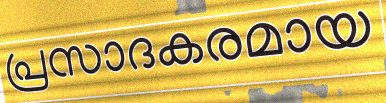
പ്രസാദകരമായ